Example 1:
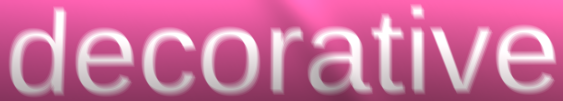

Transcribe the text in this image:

decorative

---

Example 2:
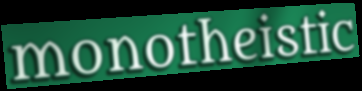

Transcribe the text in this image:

monotheistic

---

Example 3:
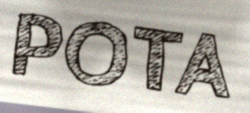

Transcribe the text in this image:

POTA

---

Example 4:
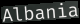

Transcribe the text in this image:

Albania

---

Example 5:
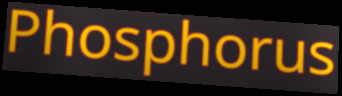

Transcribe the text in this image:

Phosphorus